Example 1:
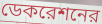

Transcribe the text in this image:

ডেকরেশনের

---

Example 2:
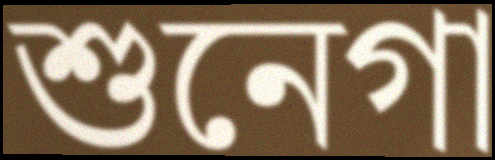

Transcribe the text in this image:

শুনেগা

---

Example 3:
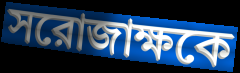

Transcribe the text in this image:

সরোজাক্ষকে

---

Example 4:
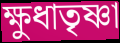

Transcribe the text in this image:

ক্ষুধাতৃষ্ণা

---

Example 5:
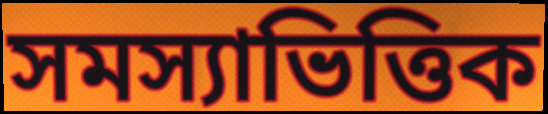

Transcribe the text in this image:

সমস্যাভিত্তিক